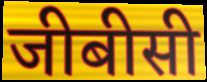
जीबीसी